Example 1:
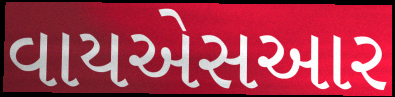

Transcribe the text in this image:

વાયએસઆર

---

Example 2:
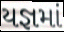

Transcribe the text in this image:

યજ્ઞમાં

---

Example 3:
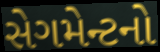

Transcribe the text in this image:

સેગમેન્ટનો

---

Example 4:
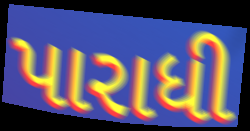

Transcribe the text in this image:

પારાધી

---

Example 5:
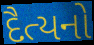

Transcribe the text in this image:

દૈત્યનો